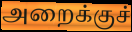
அறைக்குச்